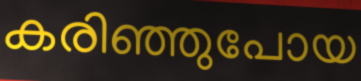
കരിഞ്ഞുപോയ